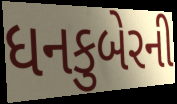
ધનકુબેરની